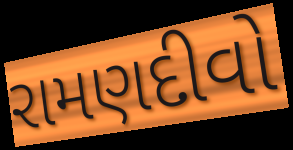
રામણદીવો